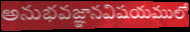
అనుభవజ్ఞానవిషయములో